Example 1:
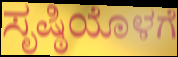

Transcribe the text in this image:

ಸೃಷ್ಠಿಯೊಳಗೆ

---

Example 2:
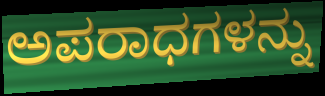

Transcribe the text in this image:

ಅಪರಾಧಗಳನ್ನು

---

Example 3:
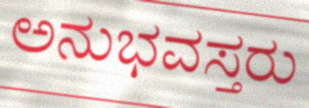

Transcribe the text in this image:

ಅನುಭವಸ್ತರು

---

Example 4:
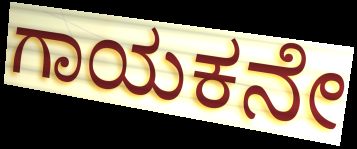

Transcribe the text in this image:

ಗಾಯಕನೇ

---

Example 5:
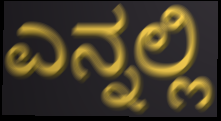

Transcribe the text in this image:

ಎನ್ನಲ್ಲಿ